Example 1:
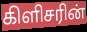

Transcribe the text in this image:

கிளிசரின்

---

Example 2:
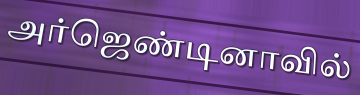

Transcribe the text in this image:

அர்ஜெண்டினாவில்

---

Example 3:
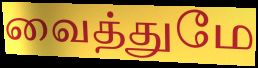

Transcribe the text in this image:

வைத்துமே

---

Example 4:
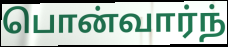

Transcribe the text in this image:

பொன்வார்ந்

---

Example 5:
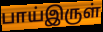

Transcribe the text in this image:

பாய்இருள்